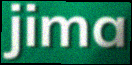
jima